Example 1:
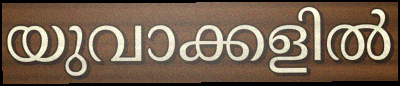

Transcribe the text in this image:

യുവാക്കളിൽ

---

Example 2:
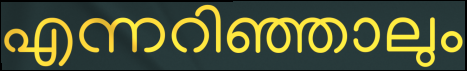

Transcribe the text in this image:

എന്നറിഞ്ഞാലും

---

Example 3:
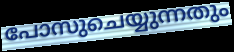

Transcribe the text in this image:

പോസുചെയ്യുന്നതും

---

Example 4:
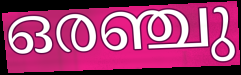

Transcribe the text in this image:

ഒരഞ്ചു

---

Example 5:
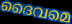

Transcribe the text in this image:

ദൈവമെ